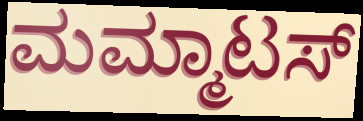
ಮಮ್ಮಾಟಸ್